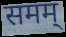
समम्